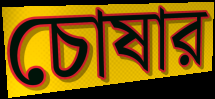
চোষার